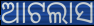
ଆଟଲାସ